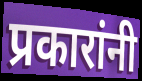
प्रकारांनी